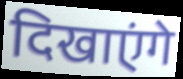
दिखाएंगे